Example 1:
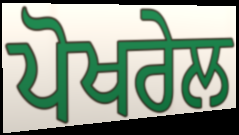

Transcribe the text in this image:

ਪੋਖਰੇਲ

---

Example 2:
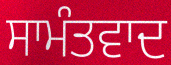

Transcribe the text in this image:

ਸਾਮੰਤਵਾਦ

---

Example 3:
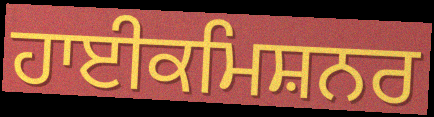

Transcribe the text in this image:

ਹਾਈਕਮਿਸ਼ਨਰ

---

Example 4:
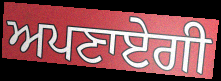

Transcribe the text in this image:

ਅਪਣਾਏਗੀ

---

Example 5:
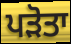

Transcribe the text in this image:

ਪੜੋਤਾ